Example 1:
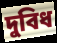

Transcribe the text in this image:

দুবিধ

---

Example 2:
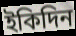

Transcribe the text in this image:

ইকিদিন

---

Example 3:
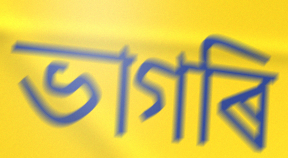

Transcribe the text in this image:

ভাগৰি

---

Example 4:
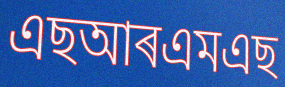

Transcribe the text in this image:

এছআৰএমএছ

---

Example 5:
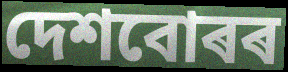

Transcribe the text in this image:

দেশবোৰৰ